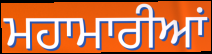
ਮਹਾਮਾਰੀਆਂ